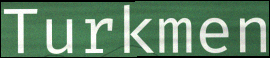
Turkmen